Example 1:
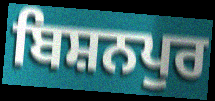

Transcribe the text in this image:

ਬਿਸ਼ਨਪੁਰ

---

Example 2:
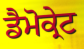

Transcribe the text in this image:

ਡੈਮੋਕ੍ਰੇਟ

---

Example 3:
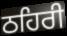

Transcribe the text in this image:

ਠਹਿਰੀ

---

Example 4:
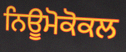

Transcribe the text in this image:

ਨਿਊਮੋਕੋਕਲ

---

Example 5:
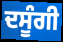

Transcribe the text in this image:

ਦਸੂੰਗੀ